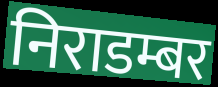
निराडम्बर